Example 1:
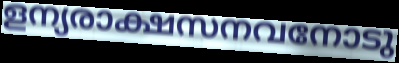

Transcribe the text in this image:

ളന്യരാക്ഷസനവനോടു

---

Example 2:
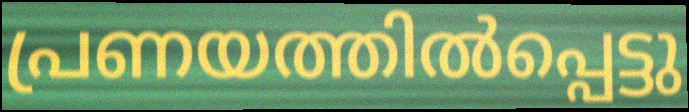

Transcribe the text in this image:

പ്രണയത്തിൽപ്പെട്ടു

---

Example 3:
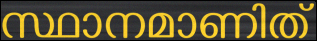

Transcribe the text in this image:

സ്ഥാനമാണിത്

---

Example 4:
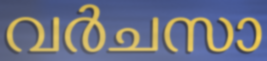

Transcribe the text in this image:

വർചസാ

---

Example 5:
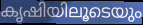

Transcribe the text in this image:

കൃഷിയിലൂടെയും